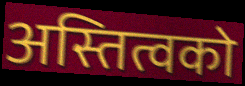
अस्तित्वको